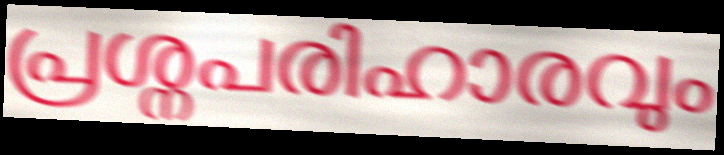
പ്രശ്നപരിഹാരവും